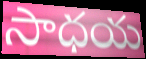
సాధయ